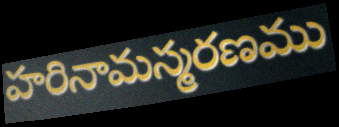
హరినామస్మరణము